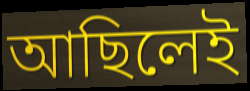
আছিলেই